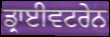
ਡ੍ਰਾਈਵਟਰੇਨ